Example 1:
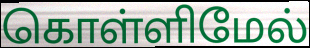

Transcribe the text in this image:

கொள்ளிமேல்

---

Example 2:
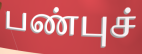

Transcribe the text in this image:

பண்புச்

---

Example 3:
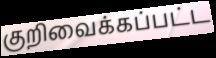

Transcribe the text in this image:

குறிவைக்கப்பட்ட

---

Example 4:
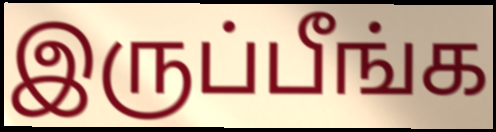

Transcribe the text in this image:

இருப்பீங்க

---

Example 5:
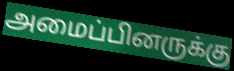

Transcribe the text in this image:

அமைப்பினருக்கு